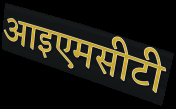
आइएमसीटी